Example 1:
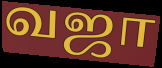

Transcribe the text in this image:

வஜா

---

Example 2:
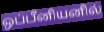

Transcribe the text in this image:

ஒப்பீனியனில்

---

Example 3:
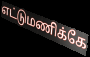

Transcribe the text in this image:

எட்டுமணிக்கே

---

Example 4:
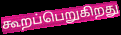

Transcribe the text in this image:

கூறப்பெறுகிறது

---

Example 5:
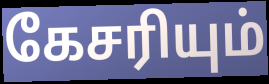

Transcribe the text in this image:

கேசரியும்